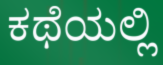
ಕಥೆಯಲ್ಲಿ